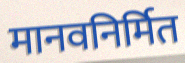
मानवनिर्मित